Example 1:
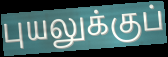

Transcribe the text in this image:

புயலுக்குப்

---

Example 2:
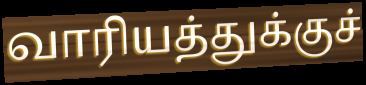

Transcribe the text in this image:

வாரியத்துக்குச்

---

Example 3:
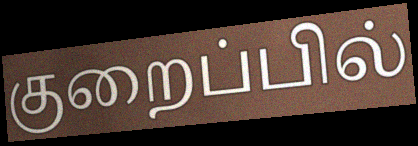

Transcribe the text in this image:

குறைப்பில்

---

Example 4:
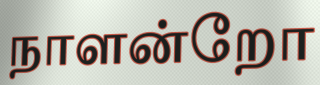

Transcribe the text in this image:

நாளன்றோ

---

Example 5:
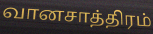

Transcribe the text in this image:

வானசாத்திரம்